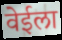
वेईला